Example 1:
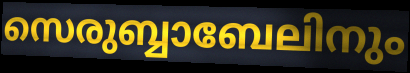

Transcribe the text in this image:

സെരുബ്ബാബേലിനും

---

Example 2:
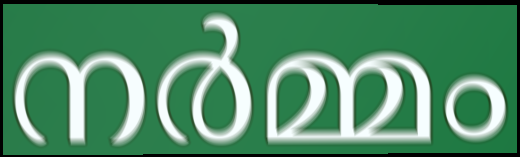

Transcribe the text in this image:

നർമ്മം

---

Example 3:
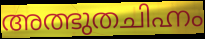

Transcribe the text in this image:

അത്ഭുതചിഹ്നം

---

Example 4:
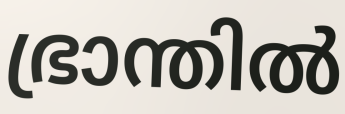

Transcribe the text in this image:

ഭ്രാന്തിൽ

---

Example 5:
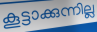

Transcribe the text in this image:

കൂട്ടാക്കുന്നില്ല